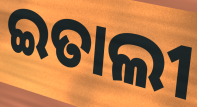
ଇତାଲୀ